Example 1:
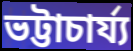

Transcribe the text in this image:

ভট্টাচাৰ্য্য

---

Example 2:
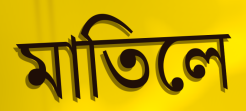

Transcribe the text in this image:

মাতিলে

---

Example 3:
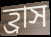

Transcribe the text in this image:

হ্ৰাস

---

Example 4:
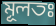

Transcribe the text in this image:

মূলতঃ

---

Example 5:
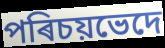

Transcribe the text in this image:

পৰিচয়ভেদে